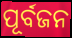
ପୂର୍ବଜନ